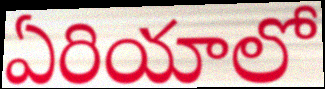
ఏరియాలో